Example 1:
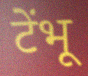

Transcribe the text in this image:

टेंभू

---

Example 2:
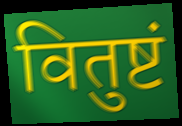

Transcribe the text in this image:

वितुष्टं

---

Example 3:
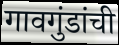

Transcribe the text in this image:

गावगुंडांची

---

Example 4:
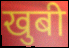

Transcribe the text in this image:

खुबी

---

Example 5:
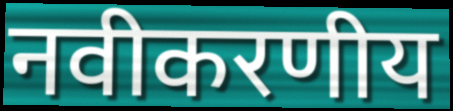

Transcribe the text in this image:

नवीकरणीय